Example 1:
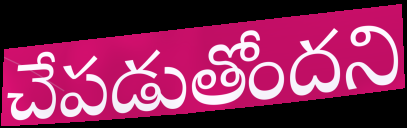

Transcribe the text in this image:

చేపడుతోందని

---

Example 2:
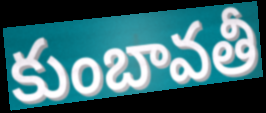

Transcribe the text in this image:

కుంబావతీ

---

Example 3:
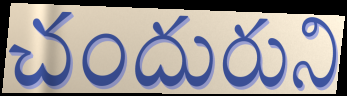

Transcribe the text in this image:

చందురుని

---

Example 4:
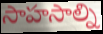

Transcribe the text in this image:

సాహసాల్ని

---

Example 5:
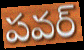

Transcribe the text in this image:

పవర్